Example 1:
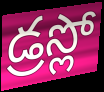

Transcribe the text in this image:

డ్రస్లో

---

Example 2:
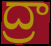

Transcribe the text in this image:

ద్రా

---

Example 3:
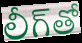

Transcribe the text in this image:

లీగ్‌తో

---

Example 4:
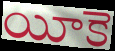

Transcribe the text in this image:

యీకె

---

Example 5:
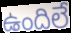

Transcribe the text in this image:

ఉందిలే